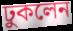
ঢুকলেন